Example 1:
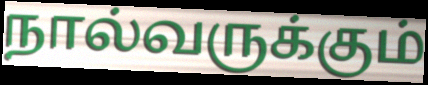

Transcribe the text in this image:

நால்வருக்கும்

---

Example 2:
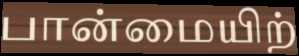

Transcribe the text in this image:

பான்மையிற்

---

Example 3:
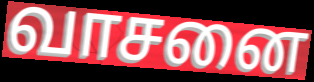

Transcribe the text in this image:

வாசனை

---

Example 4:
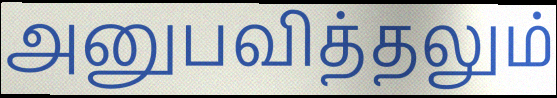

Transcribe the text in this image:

அனுபவித்தலும்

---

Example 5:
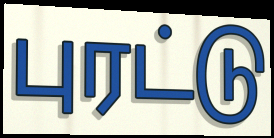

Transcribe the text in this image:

புரட்டு